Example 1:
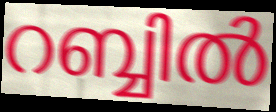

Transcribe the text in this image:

റബ്ബിൽ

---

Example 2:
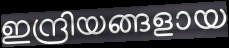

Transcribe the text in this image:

ഇന്ദ്രിയങ്ങളായ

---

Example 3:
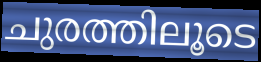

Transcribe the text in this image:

ചുരത്തിലൂടെ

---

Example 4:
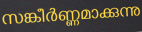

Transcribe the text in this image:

സങ്കീർണ്ണമാക്കുന്നു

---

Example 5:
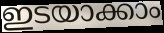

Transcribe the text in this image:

ഇടയാക്കാം